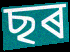
ছৰ